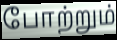
போற்றும்